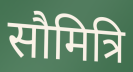
सौमित्रि